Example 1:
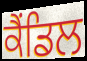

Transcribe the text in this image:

ਕੈਂਡਿਲ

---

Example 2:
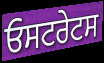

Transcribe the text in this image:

ਓਸਟਰੇਟਸ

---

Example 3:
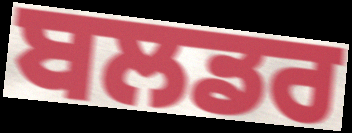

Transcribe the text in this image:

ਬਲਡਰ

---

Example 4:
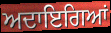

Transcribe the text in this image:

ਅਦਾਇਗਿਆਂ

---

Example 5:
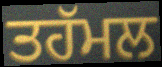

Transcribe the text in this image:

ਤਹੱਮਲ